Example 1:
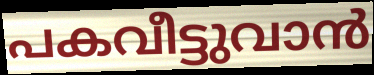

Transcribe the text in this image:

പകവീട്ടുവാൻ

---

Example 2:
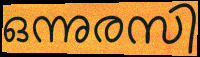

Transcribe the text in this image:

ഒന്നുരസി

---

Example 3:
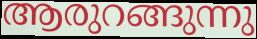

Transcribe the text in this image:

ആരുറങ്ങുന്നു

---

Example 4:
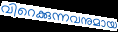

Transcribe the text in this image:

വിറെക്കുന്നവനുമായ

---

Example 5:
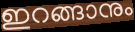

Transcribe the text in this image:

ഇറങ്ങാനും